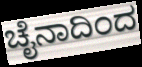
ಚೈನಾದಿಂದ